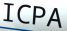
ICPA